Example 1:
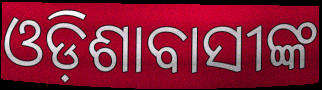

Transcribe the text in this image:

ଓଡ଼ିଶାବାସୀଙ୍କ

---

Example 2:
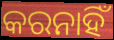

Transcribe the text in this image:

କରନାହିଁ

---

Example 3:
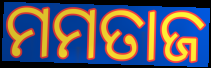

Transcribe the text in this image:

ମମତାଜ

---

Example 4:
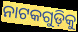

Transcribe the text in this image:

ନାଟକଗୁଡ଼ିକୁ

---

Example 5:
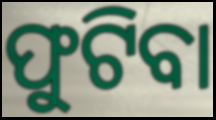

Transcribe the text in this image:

ଫୁଟିବା